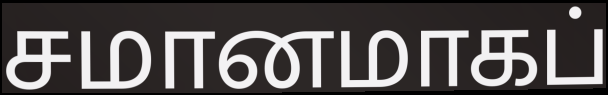
சமானமாகப்